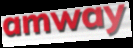
amway